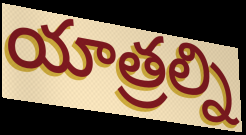
యాత్రల్ని